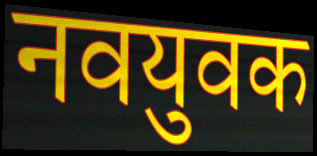
नवयुवक